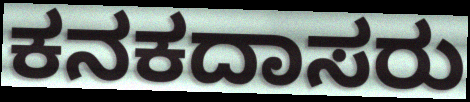
ಕನಕದಾಸರು